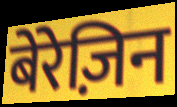
बेरेज़िन